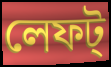
লেফট্